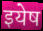
इयेष